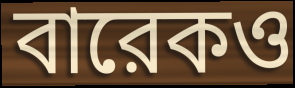
বারেকও